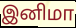
இனிமா